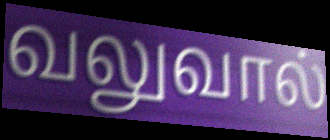
வலுவால்